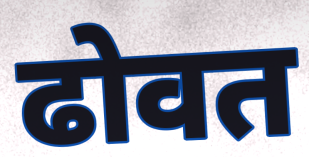
ढोवत